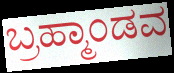
ಬ್ರಹ್ಮಾಂಡವ